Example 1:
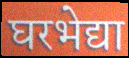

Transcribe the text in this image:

घरभेद्या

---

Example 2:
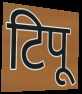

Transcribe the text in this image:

टिपू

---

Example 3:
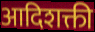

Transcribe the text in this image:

आदिशक्ती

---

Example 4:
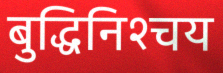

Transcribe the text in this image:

बुद्धिनिश्चय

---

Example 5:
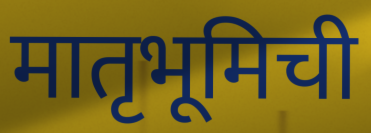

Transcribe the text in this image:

मातृभूमिची